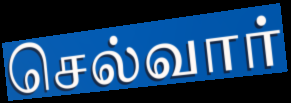
செல்வார்